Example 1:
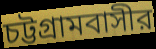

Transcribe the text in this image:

চট্টগ্রামবাসীর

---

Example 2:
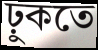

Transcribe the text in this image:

ঢ়ুকতে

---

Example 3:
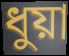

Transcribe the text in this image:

ধুয়া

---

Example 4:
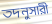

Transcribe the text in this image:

তদনুসারী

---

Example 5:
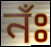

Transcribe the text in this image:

নঁঃ